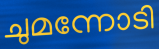
ചുമന്നോടി